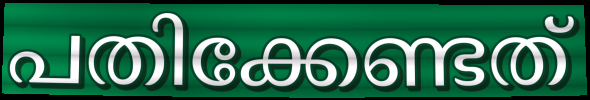
പതിക്കേണ്ടത്